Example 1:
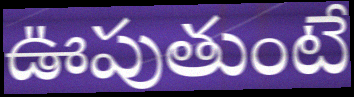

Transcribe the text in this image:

ఊపుతుంటే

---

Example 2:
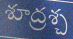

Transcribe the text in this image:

శూద్రశ్చ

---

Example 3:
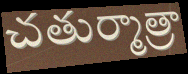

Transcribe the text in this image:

చతుర్మాత్రా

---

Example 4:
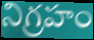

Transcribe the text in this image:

నిగ్రహం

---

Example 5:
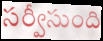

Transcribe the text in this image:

సర్వీసుంది